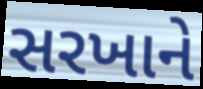
સરખાને